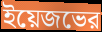
ইয়েজভের